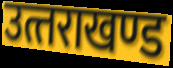
उत्‍तराखण्‍ड